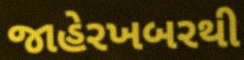
જાહેરખબરથી